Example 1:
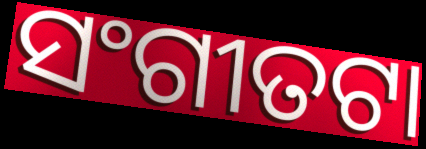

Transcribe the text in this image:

ସଂଗୀତଟା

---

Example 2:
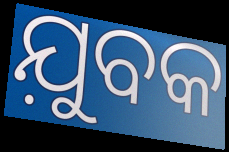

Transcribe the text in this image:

ଯ଼ୁବକ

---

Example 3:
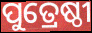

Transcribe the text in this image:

ପୁତ୍ରେଷ୍ଠୀ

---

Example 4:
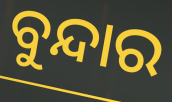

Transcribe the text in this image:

ବୁନ୍ଦାର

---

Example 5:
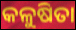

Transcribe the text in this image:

କଳୁଷିତା